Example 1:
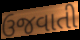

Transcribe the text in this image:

ઉજવાતી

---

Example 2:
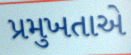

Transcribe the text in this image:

પ્રમુખતાએ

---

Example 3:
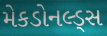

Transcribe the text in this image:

મેકડોનલ્ડ્સ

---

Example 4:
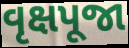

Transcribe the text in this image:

વૃક્ષપૂજા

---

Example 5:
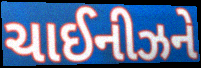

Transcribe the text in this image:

ચાઈનીઝને